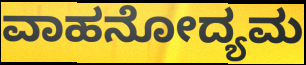
ವಾಹನೋದ್ಯಮ